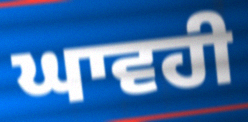
ਘਾਵਹੀ